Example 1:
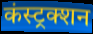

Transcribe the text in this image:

कंस्‍ट्रक्‍शन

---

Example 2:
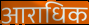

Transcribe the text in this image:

आराधिक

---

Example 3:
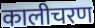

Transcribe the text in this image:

कालीचरण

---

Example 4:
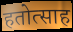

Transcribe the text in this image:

हतोत्साह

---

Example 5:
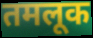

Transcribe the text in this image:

तमलूक